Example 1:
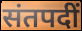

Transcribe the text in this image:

संतपदीं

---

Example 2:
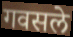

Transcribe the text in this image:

गवसले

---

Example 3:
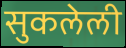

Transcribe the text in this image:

सुकलेली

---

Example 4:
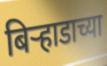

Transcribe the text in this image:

बिऱ्हाडाच्या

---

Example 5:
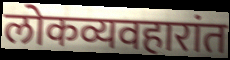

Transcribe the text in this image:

लोकव्यवहारांत